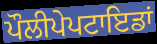
ਪੌਲੀਪੇਪਟਾਇਡਾਂ